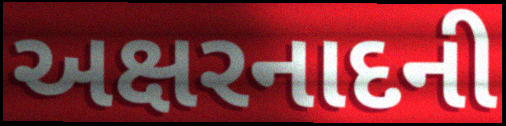
અક્ષરનાદની